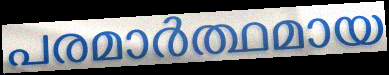
പരമാർത്ഥമായ